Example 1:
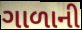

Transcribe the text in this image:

ગાળાની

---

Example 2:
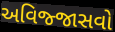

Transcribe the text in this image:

અવિજ્જાસવો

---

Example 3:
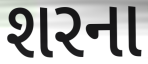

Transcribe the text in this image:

શરના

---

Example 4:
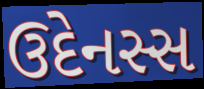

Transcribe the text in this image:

ઉદેનસ્સ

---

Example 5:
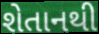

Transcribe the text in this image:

શેતાનથી